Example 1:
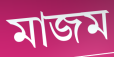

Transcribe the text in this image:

মাজম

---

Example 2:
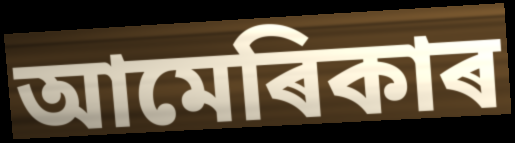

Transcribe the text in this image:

আমেৰিকাৰ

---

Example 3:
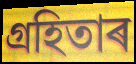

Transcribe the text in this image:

গ্ৰহিতাৰ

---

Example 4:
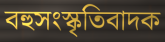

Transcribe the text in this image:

বহুসংস্কৃতিবাদক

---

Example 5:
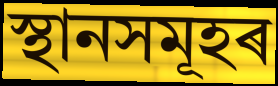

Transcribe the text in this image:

স্থানসমূহৰ